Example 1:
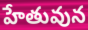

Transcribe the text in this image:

హేతువున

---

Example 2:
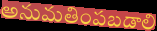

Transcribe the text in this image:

అనుమతింపబడాలి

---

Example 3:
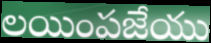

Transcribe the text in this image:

లయింపజేయు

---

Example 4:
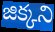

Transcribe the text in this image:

జిక్కని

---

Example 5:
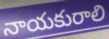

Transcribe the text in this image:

నాయకురాలి